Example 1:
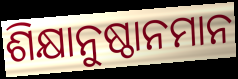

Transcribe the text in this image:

ଶିକ୍ଷାନୁଷ୍ଠାନମାନ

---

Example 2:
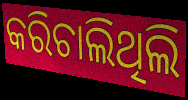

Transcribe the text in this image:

କରିଚାଲିଥିଲି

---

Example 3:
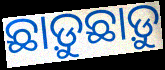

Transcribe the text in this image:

ଛାଡ଼ୁଛାଡ଼ୁ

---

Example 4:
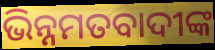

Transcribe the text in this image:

ଭିନ୍ନମତବାଦୀଙ୍କ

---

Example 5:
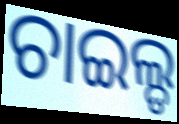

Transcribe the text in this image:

ଚାଇଲ୍ଡ